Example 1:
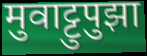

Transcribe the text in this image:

मुवाट्टुपुझा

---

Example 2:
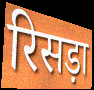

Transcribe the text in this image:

रिसड़ा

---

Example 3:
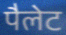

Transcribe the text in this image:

पैलेट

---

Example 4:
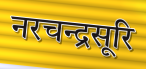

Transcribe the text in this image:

नरचन्द्रसूरि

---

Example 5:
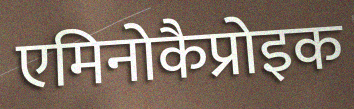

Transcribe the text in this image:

एमिनोकैप्रोइक